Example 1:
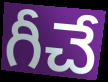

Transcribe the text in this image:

గీచే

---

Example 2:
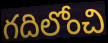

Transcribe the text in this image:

గదిలోంచి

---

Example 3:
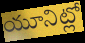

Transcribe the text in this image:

యూనిట్లో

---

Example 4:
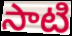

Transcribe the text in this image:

సాటి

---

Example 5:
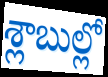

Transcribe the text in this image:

శ్లాబుల్లో